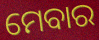
ମେବାର